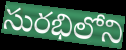
సురభిలోని